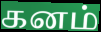
கனம்